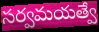
సర్వమయత్వే